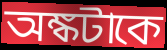
অঙ্কটাকে